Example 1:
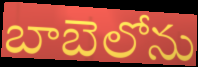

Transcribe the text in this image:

బాబెలోను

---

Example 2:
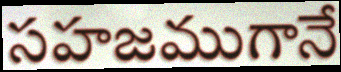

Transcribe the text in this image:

సహజముగానే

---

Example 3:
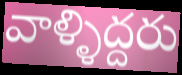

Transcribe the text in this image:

వాళ్ళిద్దరు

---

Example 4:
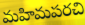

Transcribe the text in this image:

మహిమపరచి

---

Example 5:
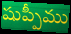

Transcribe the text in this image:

షుప్పీము